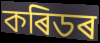
কৰিডৰ